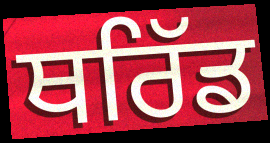
ਥਰਿੱਡ